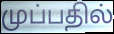
முப்பதில்